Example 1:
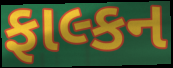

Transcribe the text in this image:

ફાલ્કન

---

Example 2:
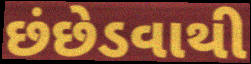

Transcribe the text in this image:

છંછેડવાથી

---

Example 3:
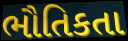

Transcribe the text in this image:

ભૌતિકતા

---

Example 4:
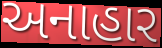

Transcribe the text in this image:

અનાહાર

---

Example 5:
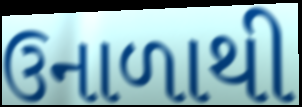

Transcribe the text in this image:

ઉનાળાથી